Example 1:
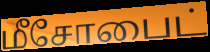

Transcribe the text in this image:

மீசோபைட்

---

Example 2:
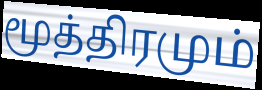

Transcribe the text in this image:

மூத்திரமும்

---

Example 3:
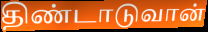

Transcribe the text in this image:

திண்டாடுவான்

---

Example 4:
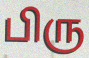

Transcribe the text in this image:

பிரு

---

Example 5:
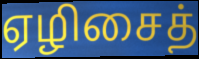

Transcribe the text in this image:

ஏழிசைத்